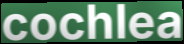
cochlea